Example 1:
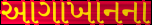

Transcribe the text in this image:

આગાખાનના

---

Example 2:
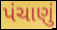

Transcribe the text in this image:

પંચાણું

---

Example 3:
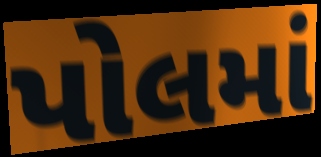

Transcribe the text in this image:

પોલમાં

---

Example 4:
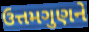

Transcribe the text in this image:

ઉત્તમગુણને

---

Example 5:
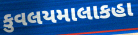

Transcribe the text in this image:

કુવલયમાલાકહા